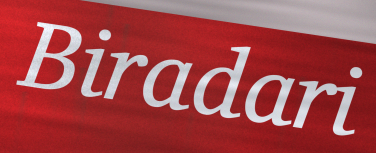
Biradari